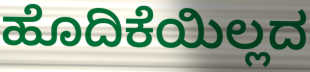
ಹೊದಿಕೆಯಿಲ್ಲದ